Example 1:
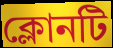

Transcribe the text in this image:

ক্লোনটি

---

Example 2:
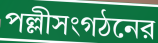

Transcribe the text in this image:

পল্লীসংগঠনের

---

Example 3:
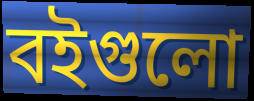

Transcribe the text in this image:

বইগুলো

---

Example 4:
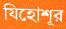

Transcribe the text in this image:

যিহোশূর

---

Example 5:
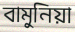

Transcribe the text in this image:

বামুনিয়া